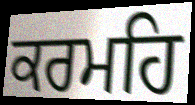
ਕਰਮਹਿ